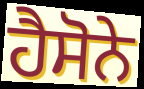
ਹੈਸੋਨੇ